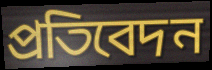
প্রতিবেদন